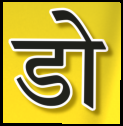
डो